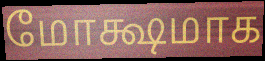
மோக்ஷமாக